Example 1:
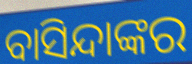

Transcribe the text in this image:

ବାସିନ୍ଦାଙ୍କର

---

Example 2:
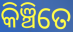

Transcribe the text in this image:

କିଞ୍ଚିତେ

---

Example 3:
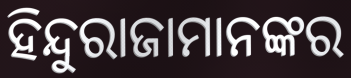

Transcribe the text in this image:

ହିନ୍ଦୁରାଜାମାନଙ୍କର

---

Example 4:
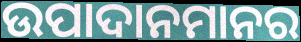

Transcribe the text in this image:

ଉପାଦାନମାନର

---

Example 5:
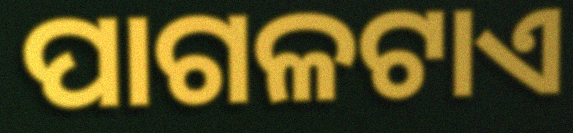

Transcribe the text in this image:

ପାଗଳଟାଏ